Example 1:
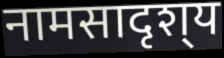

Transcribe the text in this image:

नामसादृश्य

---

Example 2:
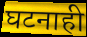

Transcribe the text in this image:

घटनाही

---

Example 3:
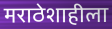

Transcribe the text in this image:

मराठेशाहीला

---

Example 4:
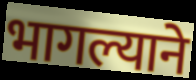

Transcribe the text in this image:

भागल्याने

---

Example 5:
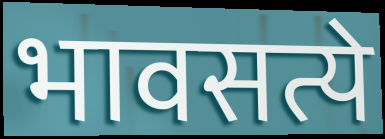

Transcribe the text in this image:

भावसत्ये